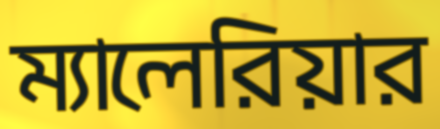
ম্যালেরিয়ার